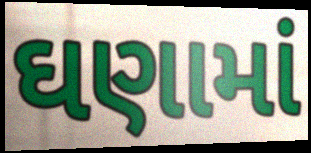
ઘણામાં